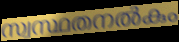
സ്വസ്ഥതനൽകും